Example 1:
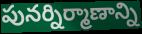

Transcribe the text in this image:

పునర్నిర్మాణాన్ని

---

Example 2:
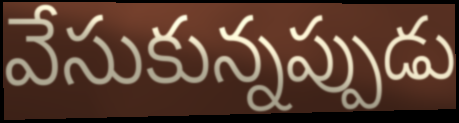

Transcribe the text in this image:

వేసుకున్నప్పుడు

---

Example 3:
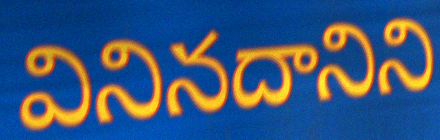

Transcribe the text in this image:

వినినదానిని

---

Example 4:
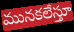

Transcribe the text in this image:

మునకలేస్తూ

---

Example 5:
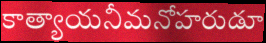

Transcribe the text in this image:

కాత్యాయనీమనోహరుడూ